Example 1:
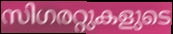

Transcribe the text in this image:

സിഗരറ്റുകളുടെ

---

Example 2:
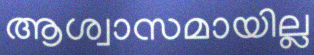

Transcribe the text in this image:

ആശ്വാസമായില്ല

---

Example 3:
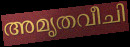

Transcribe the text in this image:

അമൃതവീചി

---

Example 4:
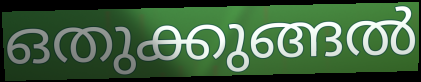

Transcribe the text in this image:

ഒതുക്കുങ്ങൽ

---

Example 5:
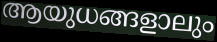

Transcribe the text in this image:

ആയുധങ്ങളാലും